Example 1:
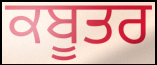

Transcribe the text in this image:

ਕਬੂਤਰ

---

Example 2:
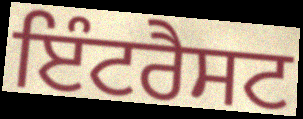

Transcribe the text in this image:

ਇੰਟਰੈਸਟ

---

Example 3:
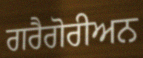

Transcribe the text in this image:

ਗਰੈਗੋਰੀਅਨ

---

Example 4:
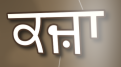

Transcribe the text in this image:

ਕਜ਼ਾ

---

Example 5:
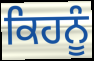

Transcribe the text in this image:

ਕਿਹਨੂੰ